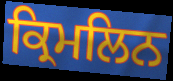
ਕ੍ਰਿਮਲਿਨ